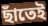
ছাঁতেই